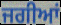
ਜਗੀਆਂ